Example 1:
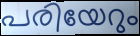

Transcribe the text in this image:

പരിയേറും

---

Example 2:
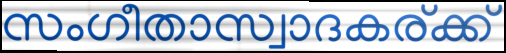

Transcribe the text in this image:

സംഗീതാസ്വാദകര്ക്ക്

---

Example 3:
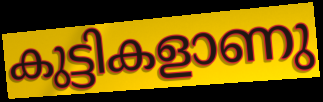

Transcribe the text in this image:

കുട്ടികളാണു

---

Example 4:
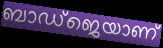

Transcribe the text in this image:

ബാഡ്ജെയാണ്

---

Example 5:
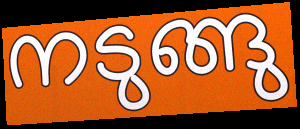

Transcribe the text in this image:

നടുങ്ങു